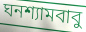
ঘনশ্যামবাবু